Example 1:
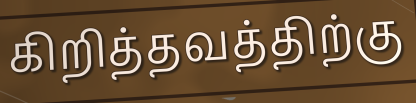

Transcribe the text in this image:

கிறித்தவத்திற்கு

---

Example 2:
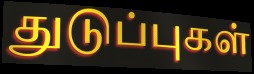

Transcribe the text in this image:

துடுப்புகள்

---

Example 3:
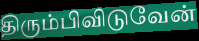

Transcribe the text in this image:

திரும்பிவிடுவேன்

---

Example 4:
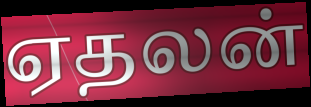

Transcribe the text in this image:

ஏதலன்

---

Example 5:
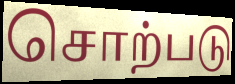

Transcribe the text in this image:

சொற்படு